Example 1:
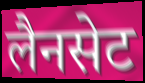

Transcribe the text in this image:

लैनसेट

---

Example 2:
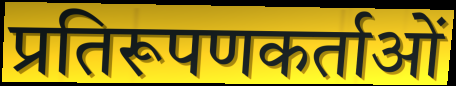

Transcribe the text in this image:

प्रतिरूपणकर्ताओं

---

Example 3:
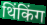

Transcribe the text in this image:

थिंकिंग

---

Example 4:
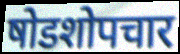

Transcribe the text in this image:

षोडशोपचार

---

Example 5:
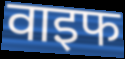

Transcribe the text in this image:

वाइफ